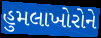
હુમલાખોરોને